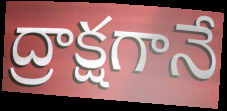
ద్రాక్షగానే